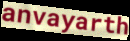
anvayarth